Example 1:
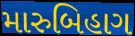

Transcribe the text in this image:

મારુબિહાગ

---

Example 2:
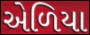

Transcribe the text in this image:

એળિયા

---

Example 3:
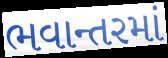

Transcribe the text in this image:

ભવાન્તરમાં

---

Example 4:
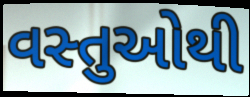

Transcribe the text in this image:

વસ્તુઓથી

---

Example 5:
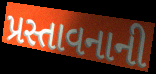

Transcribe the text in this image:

પ્રસ્તાવનાની